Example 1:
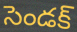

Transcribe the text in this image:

సెండక్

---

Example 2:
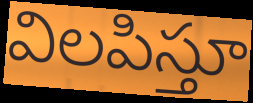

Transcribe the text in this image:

విలపిస్తూ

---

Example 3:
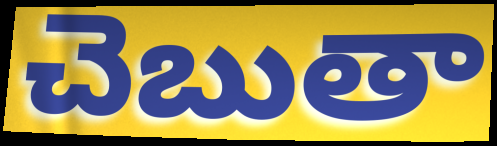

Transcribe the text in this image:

చెబుతా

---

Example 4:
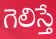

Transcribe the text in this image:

గెలిస్తే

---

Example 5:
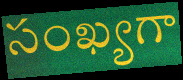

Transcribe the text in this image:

సంఖ్యగా